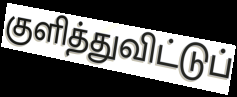
குளித்துவிட்டுப்